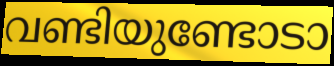
വണ്ടിയുണ്ടോടാ